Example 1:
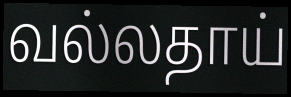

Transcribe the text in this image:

வல்லதாய்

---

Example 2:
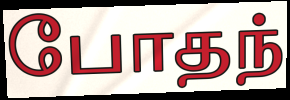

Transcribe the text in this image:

போதந்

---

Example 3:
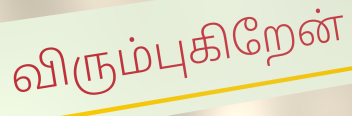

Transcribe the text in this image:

விரும்புகிறேன்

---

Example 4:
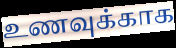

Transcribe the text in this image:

உணவுக்காக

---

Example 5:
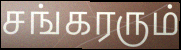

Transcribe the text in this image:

சங்கரரும்